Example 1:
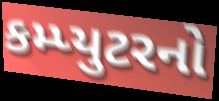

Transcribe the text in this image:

કમ્પ્યુટરનો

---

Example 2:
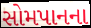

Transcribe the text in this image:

સોમપાનના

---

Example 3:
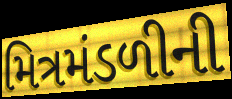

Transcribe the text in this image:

મિત્રમંડળીની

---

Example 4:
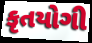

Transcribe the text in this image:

કૃતયોગી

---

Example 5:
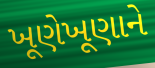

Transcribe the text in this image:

ખૂણેખૂણાને